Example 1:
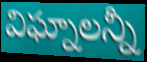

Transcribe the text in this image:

విఘ్నాలన్నీ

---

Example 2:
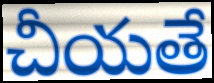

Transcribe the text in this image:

చీయతే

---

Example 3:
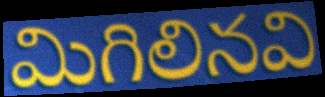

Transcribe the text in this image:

మిగిలినవి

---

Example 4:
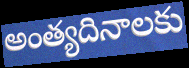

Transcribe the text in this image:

అంత్యదినాలకు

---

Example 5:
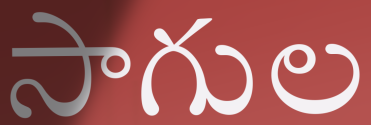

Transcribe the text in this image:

సాగుల